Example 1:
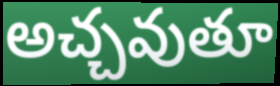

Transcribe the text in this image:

అచ్చవుతూ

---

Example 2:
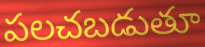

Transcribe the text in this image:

పలచబడుతూ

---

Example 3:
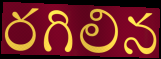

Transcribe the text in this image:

రగిలిన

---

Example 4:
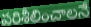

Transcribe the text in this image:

పరిశీలించాలనే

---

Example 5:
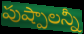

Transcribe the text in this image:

పుష్పాలన్నీ